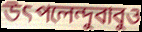
উৎপলেন্দুবাবুও